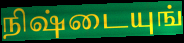
நிஷ்டையுங்